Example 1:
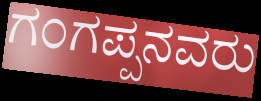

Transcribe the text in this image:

ಗಂಗಪ್ಪನವರು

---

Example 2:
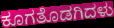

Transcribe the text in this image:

ಕೂಗತೊಡಗಿದಳು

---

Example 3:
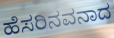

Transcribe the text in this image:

ಹೆಸರಿನವನಾದ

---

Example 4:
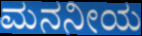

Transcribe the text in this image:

ಮನನೀಯ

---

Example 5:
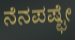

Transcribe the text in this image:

ನೆನಪಷ್ಟೇ